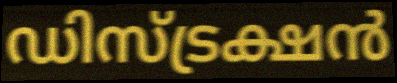
ഡിസ്ട്രക്ഷൻ